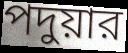
পদুয়ার